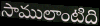
సాములాంటిది